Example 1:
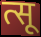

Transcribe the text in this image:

त्सू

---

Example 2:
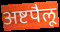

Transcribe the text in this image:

अष्टपैलू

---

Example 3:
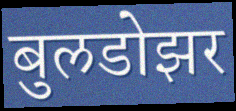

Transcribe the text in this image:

बुलडोझर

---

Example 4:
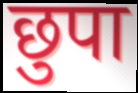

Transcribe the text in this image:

छुपा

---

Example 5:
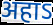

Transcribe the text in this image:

अहाऽ